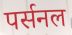
पर्सनल